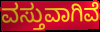
ವಸ್ತುವಾಗಿವೆ